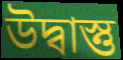
উদ্বাস্তু